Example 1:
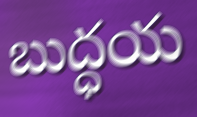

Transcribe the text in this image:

బుద్ధయ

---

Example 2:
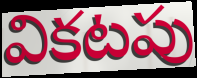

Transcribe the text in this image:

వికటపు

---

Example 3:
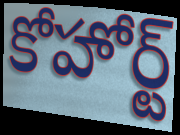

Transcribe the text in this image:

కోహోర్ట్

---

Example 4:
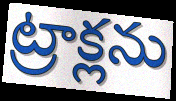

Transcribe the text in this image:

ట్రాక్లను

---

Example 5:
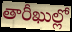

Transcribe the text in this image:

తారీఖుల్లో